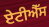
ਏਟੀਐੱਸ